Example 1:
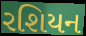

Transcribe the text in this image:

રશિયન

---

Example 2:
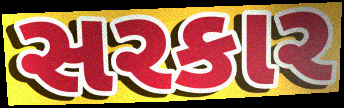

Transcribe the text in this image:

સરકાર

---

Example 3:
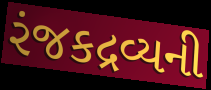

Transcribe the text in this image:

રંજકદ્રવ્યની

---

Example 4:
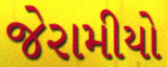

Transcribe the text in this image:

જેરામીયો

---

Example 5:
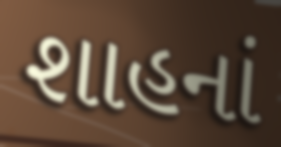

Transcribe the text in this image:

શાહનાં